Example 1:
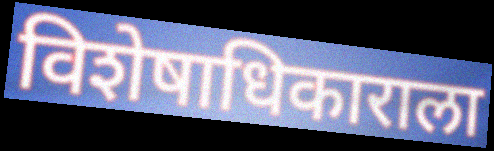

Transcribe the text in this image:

विशेषाधिकाराला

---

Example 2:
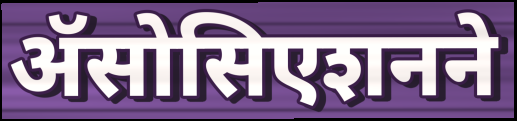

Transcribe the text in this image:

ॲसोसिएशनने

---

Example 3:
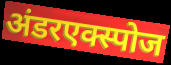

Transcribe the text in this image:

अंडरएक्स्पोज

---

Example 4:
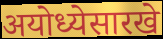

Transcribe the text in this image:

अयोध्येसारखे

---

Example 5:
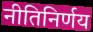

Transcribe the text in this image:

नीतिनिर्णय